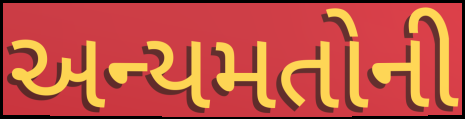
અન્યમતોની